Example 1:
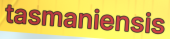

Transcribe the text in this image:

tasmaniensis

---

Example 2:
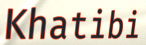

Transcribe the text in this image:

Khatibi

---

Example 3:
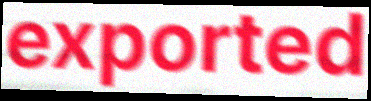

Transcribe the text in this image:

exported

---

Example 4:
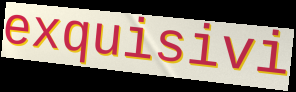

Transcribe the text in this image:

exquisivi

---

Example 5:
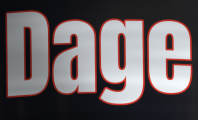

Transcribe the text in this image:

Dage